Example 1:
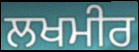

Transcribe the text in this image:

ਲਖਮੀਰ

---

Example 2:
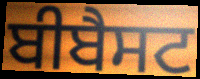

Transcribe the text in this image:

ਬੀਬੈਸਟ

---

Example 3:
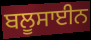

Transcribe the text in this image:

ਬਲੂਸਾਈਨ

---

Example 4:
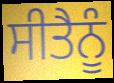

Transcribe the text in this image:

ਸੀਤੈਨੂੰ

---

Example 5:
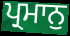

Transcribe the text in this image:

ਪ੍ਰਮਾਨੁ